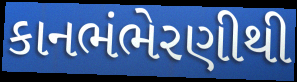
કાનભંભેરણીથી